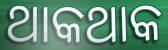
ଥାକଥାକ